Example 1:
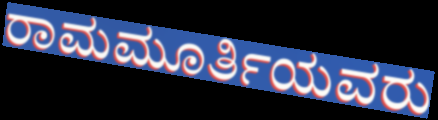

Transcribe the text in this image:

ರಾಮಮೂರ್ತಿಯವರು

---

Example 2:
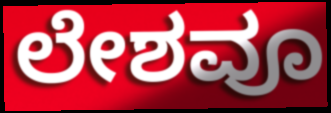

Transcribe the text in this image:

ಲೇಶವೂ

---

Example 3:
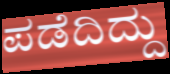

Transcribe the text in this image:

ಪಡೆದಿದ್ದು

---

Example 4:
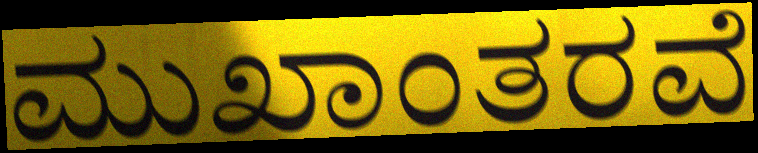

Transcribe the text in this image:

ಮುಖಾಂತರವೆ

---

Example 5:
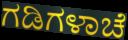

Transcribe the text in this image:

ಗಡಿಗಳಾಚೆ